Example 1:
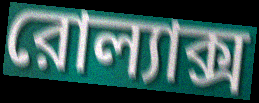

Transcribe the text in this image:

রোল্যাক্স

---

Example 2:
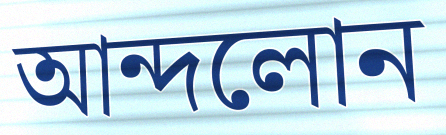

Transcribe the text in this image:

আন্দলোন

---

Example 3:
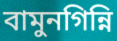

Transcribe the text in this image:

বামুনগিন্নি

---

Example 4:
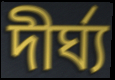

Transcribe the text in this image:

দীর্ঘ্য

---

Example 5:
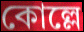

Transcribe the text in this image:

কোল্লে